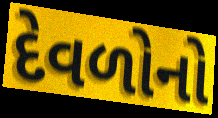
દેવળોનો